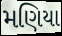
મણિયા